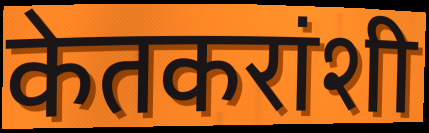
केतकरांशी